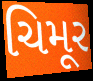
ચિમૂર